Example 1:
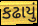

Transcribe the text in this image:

કઢાયું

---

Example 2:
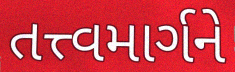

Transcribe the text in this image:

તત્ત્વમાર્ગને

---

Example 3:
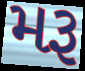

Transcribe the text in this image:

મરૂ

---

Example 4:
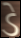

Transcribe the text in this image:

ડે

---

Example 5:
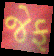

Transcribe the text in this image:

જેફ